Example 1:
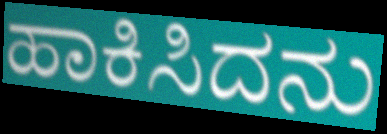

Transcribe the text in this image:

ಹಾಕಿಸಿದನು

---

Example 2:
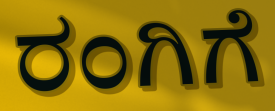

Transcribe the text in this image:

ರಂಗಿಗೆ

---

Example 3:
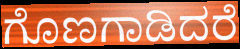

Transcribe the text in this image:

ಗೊಣಗಾಡಿದರೆ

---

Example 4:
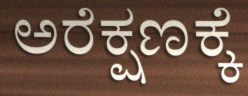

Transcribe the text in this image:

ಅರೆಕ್ಷಣಕ್ಕೆ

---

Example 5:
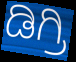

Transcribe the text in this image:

ಡಿಗ್ರಿ